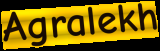
Agralekh